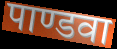
पाण्डवा